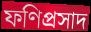
ফণিপ্রসাদ